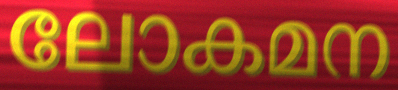
ലോകമന